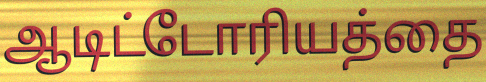
ஆடிட்டோரியத்தை